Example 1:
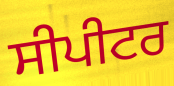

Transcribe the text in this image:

ਸੀਪੀਟਰ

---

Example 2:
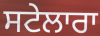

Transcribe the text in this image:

ਸਟੇਲਾਰਾ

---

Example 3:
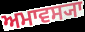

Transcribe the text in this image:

ਅਮਾਵਸ੍ਯਾ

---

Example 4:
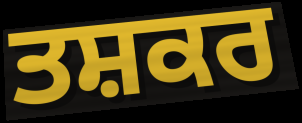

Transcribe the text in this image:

ਤਸ਼ਕਰ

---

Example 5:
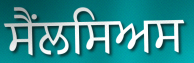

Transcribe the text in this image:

ਸੈਂਲਸਿਅਸ